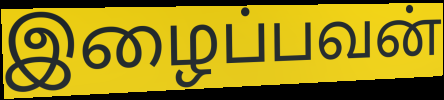
இழைப்பவன்